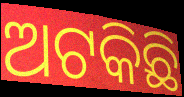
ଅଟକିଛି